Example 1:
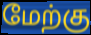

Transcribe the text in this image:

மேற்கு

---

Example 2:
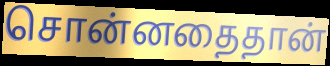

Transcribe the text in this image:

சொன்னதைதான்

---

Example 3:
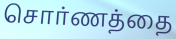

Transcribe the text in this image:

சொர்ணத்தை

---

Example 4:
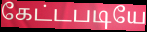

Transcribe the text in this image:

கேட்டபடியே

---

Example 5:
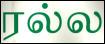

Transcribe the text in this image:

ரல்ல